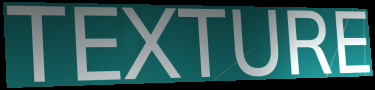
TEXTURE